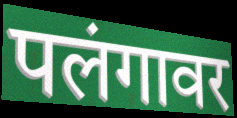
पलंगावर